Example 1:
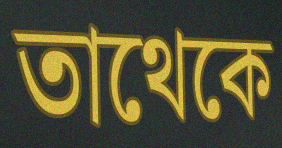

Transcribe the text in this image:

তাথেকে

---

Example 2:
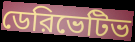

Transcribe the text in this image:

ডেরিভেটিভ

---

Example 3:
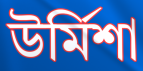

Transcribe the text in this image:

উর্মিশা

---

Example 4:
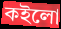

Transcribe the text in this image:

কইলো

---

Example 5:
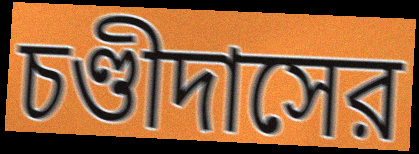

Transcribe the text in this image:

চণ্ডীদাসের